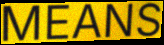
MEANS